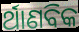
ର୍ଥାଣବିକ